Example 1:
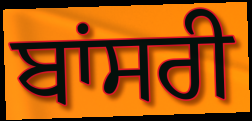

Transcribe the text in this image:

ਬਾਂਸਰੀ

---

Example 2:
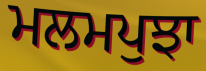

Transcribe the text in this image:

ਮਲਮਪੁਝਾ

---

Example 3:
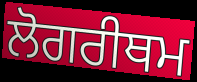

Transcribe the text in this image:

ਲੋਗਰੀਥਮ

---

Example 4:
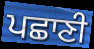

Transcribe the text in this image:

ਪਛਾਣੀ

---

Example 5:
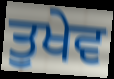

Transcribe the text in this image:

ਤੁਖੇਵ